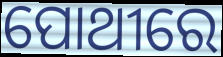
ପୋଥୀରେ